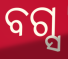
ବଗ୍ସ